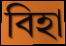
বিহা